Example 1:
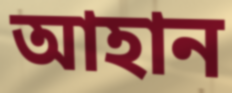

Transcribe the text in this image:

আহান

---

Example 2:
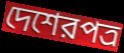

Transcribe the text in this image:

দেশেরপত্র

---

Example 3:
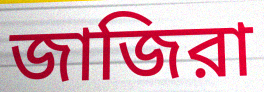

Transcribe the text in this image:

জাজিরা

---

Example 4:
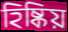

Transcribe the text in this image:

হিষ্কিয়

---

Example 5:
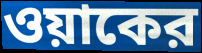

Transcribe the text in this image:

ওয়াকের